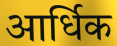
आर्धिक